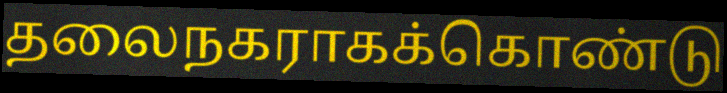
தலைநகராகக்கொண்டு